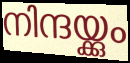
നിന്ദയ്ക്കും